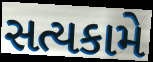
સત્યકામે